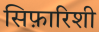
सिफ़ारिशी